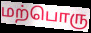
மற்பொரு